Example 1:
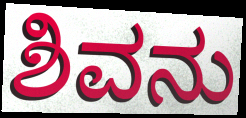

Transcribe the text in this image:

ಶಿವನು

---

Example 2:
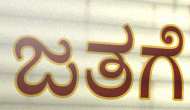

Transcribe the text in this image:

ಜತಗೆ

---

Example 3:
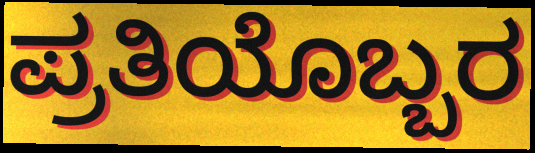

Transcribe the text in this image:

ಪ್ರತಿಯೊಬ್ಬರ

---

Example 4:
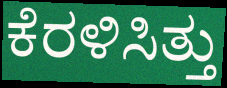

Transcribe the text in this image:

ಕೆರಳಿಸಿತ್ತು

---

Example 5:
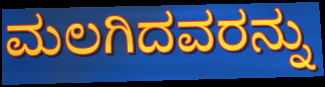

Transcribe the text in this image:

ಮಲಗಿದವರನ್ನು